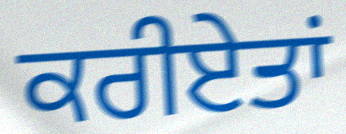
ਕਰੀਏਤਾਂ